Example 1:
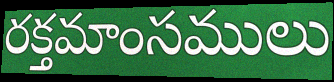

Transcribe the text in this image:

రక్తమాంసములు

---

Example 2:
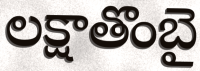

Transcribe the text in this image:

లక్షాతొంబై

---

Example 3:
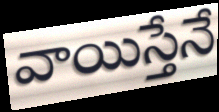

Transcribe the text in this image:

వాయిస్తేనే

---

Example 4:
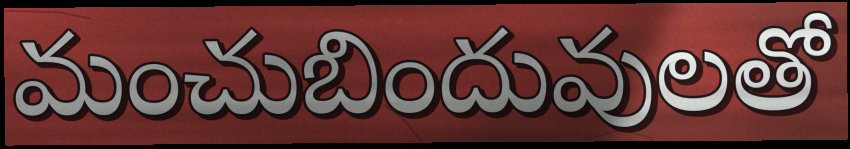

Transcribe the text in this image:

మంచుబిందువులతో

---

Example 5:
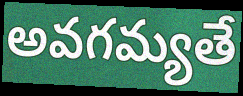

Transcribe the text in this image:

అవగమ్యతే